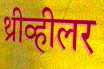
थ्रीव्हीलर